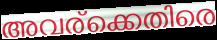
അവര്ക്കെതിരെ